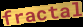
fractal